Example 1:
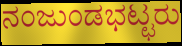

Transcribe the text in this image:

ನಂಜುಂಡಭಟ್ಟರು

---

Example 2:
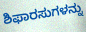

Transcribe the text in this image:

ಶಿಫಾರಸುಗಳನ್ನು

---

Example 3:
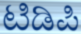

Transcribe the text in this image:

ಟಿಡಿಪಿ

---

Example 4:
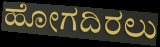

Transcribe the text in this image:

ಹೋಗದಿರಲು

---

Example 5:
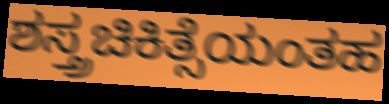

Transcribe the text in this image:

ಶಸ್ತ್ರಚಿಕಿತ್ಸೆಯಂತಹ